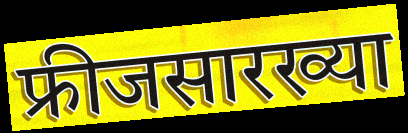
फ्रीजसारख्या